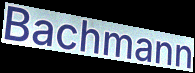
Bachmann